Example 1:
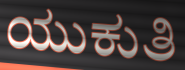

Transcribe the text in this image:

ಯುಕುತಿ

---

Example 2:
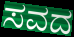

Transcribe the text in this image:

ಸವದ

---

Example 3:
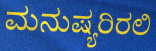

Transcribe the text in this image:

ಮನುಷ್ಯರಿರಲಿ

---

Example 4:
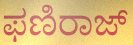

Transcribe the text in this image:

ಫಣಿರಾಜ್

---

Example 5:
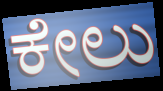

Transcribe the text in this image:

ಕೇಲು